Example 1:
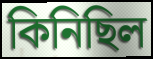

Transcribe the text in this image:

কিনিছিল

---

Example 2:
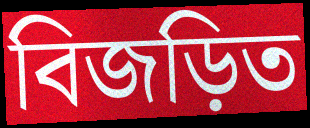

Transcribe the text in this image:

বিজড়িত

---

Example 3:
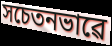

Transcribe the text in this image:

সচেতনভাৱে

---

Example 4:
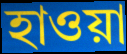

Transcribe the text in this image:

হাওয়া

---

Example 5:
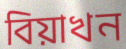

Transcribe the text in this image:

বিয়াখন